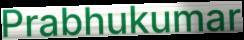
Prabhukumar